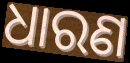
ଧାରଣ